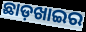
ଛାଡ଼ଖାଇର